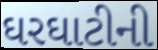
ઘરઘાટીની